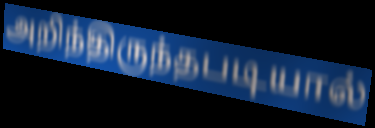
அறிந்திருந்தபடியால்